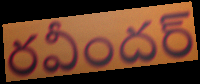
రవీందర్